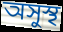
অসুস্থ